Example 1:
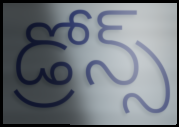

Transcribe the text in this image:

డ్రోన్స్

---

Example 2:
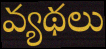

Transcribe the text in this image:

వ్యథలు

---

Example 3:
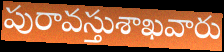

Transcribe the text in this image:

పురావస్తుశాఖవారు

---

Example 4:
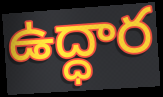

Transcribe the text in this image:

ఉద్ధార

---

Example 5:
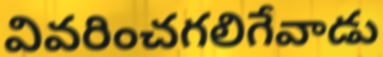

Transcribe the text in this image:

వివరించగలిగేవాడు